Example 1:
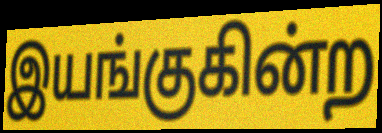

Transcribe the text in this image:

இயங்குகின்ற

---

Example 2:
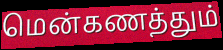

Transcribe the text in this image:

மென்கணத்தும்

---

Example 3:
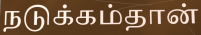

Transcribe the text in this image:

நடுக்கம்தான்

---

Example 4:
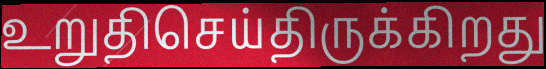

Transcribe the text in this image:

உறுதிசெய்திருக்கிறது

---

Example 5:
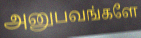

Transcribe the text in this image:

அனுபவங்களே